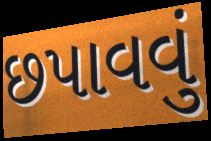
છપાવવું